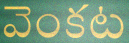
వెంకట